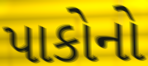
પાકોનો